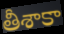
తీశాకా